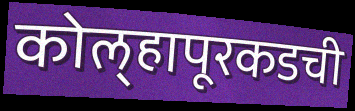
कोल्हापूरकडची